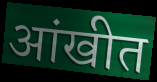
आंखीत